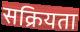
सक्रियता